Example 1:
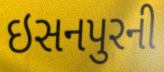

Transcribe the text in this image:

ઇસનપુરની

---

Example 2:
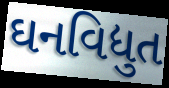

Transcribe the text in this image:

ઘનવિદ્યુત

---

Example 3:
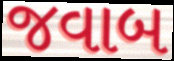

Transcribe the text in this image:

જવાબ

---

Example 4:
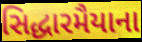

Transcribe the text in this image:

સિદ્ધારમૈયાના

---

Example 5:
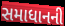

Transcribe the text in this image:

સમાધાનની